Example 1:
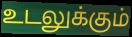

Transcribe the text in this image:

உடலுக்கும்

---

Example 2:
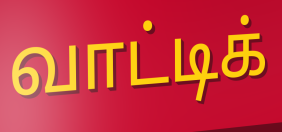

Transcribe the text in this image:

வாட்டிக்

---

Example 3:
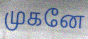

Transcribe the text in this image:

முகனே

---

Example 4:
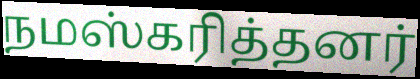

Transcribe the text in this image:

நமஸ்கரித்தனர்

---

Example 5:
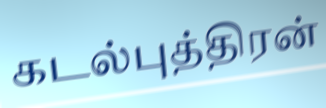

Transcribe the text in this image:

கடல்புத்திரன்